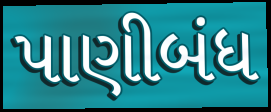
પાણીબંધ